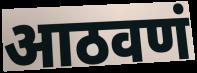
आठवणं